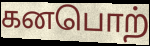
கனபொற்